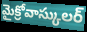
మైక్రోవాస్కులర్